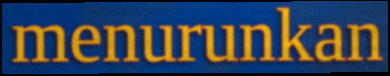
menurunkan